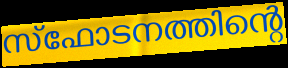
സ്ഫോടനത്തിന്റെ